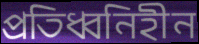
প্রতিধ্বনিহীন